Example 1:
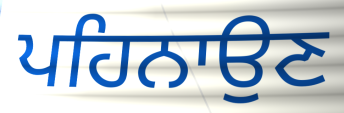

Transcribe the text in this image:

ਪਹਿਨਾਉਣ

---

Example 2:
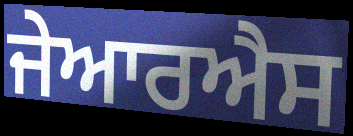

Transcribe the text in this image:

ਜੇਆਰਐਸ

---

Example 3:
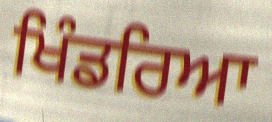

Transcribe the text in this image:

ਖਿੰਡਰਿਆ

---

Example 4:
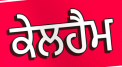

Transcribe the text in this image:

ਕੇਲਹੈਮ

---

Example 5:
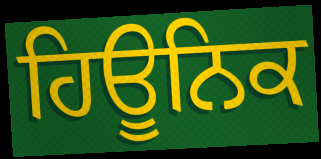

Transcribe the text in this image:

ਹਿਊਨਿਕ